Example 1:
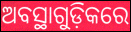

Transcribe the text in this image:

ଅବସ୍ଥାଗୁଡ଼ିକରେ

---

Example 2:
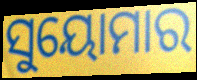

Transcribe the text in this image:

ସୁୟୋମାର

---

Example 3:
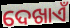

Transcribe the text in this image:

ଦେଖାଏଁ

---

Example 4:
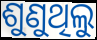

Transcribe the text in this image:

ଶୁଣୁଥିଲୁ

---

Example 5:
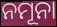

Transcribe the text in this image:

ନମୂନା